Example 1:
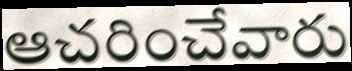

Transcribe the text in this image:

ఆచరించేవారు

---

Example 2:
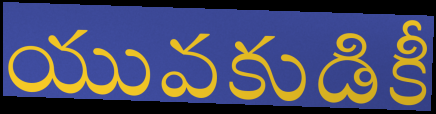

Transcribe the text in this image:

యువకుడికీ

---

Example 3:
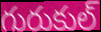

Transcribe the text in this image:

గురుకుల్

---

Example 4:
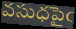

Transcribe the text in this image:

వసుధపైఁ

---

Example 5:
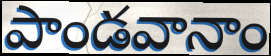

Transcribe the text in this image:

పాండవానాం